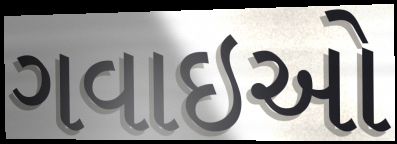
ગવાઇઓ